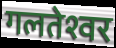
गलतेश्वर